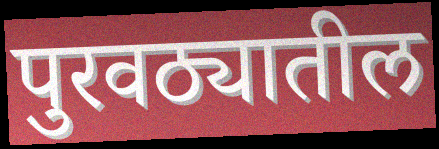
पुरवठ्यातील